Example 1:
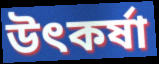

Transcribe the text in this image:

উৎকর্ষা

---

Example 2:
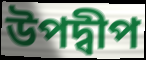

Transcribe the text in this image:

উপদ্বীপ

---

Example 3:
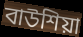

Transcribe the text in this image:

বাউশিয়া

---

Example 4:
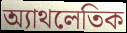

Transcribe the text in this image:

অ্যাথলেতিক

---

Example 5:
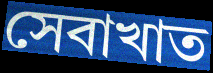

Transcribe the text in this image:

সেবাখাত